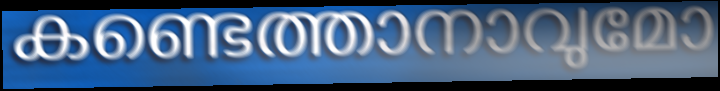
കണ്ടെത്താനാവുമോ